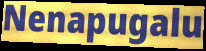
Nenapugalu